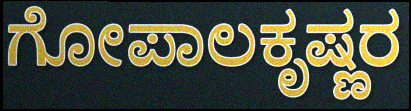
ಗೋಪಾಲಕೃಷ್ಣರ